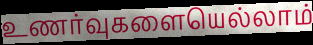
உணர்வுகளையெல்லாம்